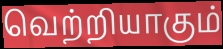
வெற்றியாகும்